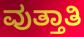
ವುತ್ತಾತಿ